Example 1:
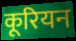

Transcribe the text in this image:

कूरियन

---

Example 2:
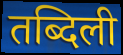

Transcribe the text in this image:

तब्दिली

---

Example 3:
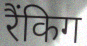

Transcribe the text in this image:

रैंकिग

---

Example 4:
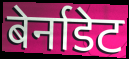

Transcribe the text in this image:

बेर्नाडेट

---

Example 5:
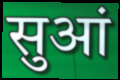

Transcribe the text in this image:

सुआं